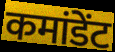
कमांडेंट